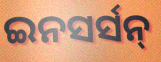
ଇନସର୍ସନ୍